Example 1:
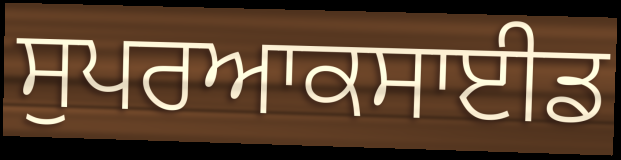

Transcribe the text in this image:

ਸੁਪਰਆਕਸਾਈਡ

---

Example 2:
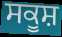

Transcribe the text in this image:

ਸਕੂਸ਼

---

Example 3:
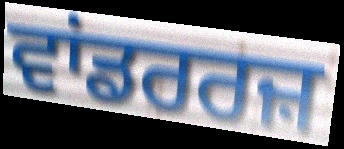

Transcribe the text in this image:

ਵਾਂਡਰਰਜ਼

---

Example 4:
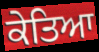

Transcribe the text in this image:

ਕੇਤਿਆ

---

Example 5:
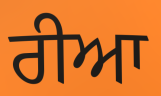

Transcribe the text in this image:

ਰੀਆ